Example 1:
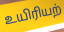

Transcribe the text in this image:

உயிரியற்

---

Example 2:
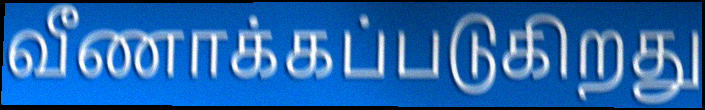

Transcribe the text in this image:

வீணாக்கப்படுகிறது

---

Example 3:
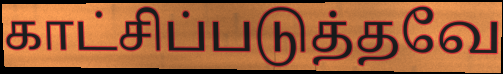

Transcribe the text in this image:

காட்சிப்படுத்தவே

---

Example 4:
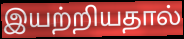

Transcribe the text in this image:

இயற்றியதால்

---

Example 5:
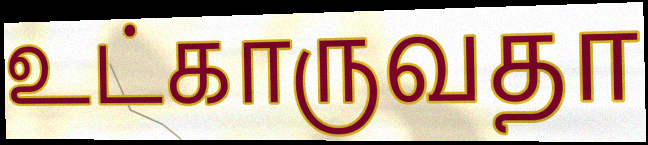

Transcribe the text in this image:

உட்காருவதா